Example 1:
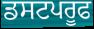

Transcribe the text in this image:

ਡਸਟਪਰੂਫ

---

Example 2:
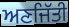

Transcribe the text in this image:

ਅਣਜਿੱਤੀ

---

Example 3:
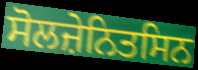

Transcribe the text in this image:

ਸੋਲਜ਼ੇਨਿਤਸਿਨ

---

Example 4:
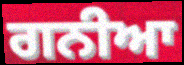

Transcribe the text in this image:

ਗਨੀਆ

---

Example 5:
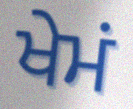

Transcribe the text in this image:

ਖੇਮਂ